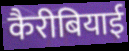
कैरीबियाई